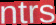
ntrs